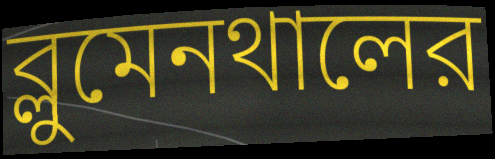
ব্লুমেনথালের